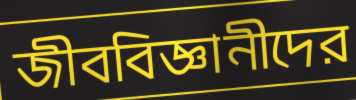
জীববিজ্ঞানীদের